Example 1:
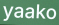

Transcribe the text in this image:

yaako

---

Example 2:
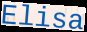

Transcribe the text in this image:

Elisa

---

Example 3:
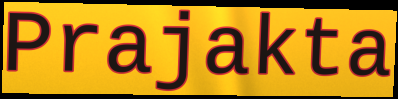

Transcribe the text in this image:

Prajakta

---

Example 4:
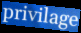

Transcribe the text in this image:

privilage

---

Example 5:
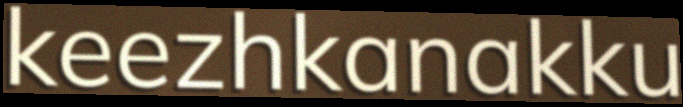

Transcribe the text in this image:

keezhkanakku